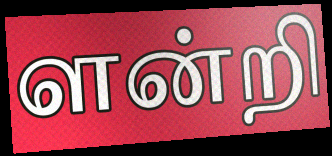
ளன்றி